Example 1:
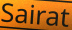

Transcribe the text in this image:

Sairat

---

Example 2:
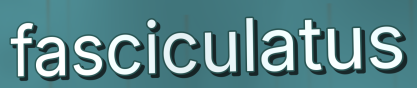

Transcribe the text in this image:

fasciculatus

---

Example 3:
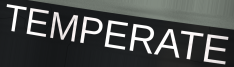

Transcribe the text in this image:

TEMPERATE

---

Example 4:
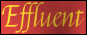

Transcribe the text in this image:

Effluent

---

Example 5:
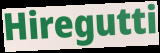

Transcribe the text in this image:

Hiregutti